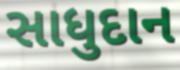
સાધુદાન